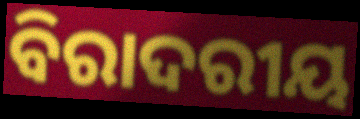
ବିରାଦରୀୟ